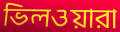
ভিলওয়ারা